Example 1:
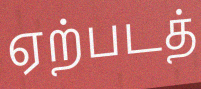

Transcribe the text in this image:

ஏற்படத்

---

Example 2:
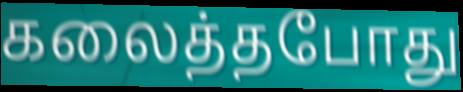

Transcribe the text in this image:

கலைத்தபோது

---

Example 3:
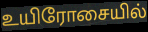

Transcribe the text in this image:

உயிரோசையில்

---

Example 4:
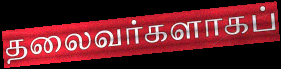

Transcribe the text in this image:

தலைவர்களாகப்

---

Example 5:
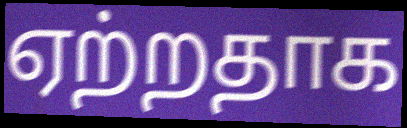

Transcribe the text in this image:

ஏற்றதாக